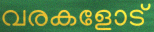
വരകളോട്